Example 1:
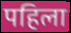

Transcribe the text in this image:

पहिला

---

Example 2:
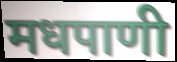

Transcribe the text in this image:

मधपाणी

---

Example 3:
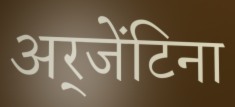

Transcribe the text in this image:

अर्जेंटिना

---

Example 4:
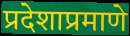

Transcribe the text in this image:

प्रदेशाप्रमाणे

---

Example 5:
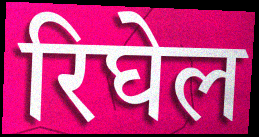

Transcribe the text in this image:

रिघेल